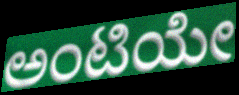
ಅಂಟಿಯೇ